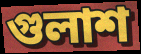
গুলাশ